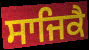
ਸਾਜਿਕੈ